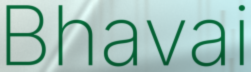
Bhavai